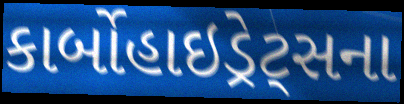
કાર્બોહાઇડ્રેટ્સના